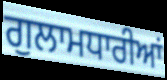
ਗੁਲਾਮਧਾਰੀਆਂ